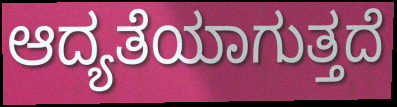
ಆದ್ಯತೆಯಾಗುತ್ತದೆ